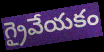
గ్రైవేయకం